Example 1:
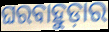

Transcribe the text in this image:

ଘରବାହୁଡ଼ାର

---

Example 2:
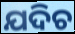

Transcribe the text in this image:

ଯଦିଚ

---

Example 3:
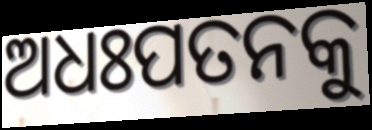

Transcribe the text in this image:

ଅଧଃପତନକୁ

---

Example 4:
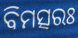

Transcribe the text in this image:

ବିମତ୍ସରଃ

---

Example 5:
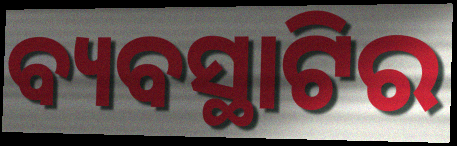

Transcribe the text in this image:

ବ୍ୟବସ୍ଥାଟିର